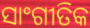
ସାଂଗୀତିକ